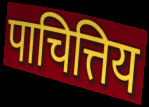
पाचित्तिय